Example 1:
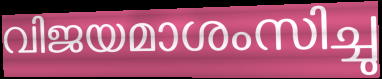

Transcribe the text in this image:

വിജയമാശംസിച്ചു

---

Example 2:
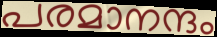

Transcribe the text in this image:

പരമാനന്ദം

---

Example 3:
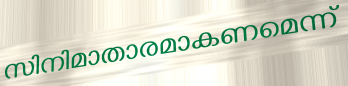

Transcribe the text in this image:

സിനിമാതാരമാകണമെന്ന്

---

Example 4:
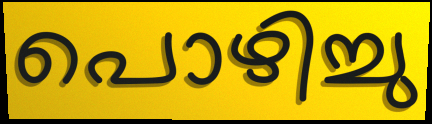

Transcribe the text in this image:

പൊഴിച്ചു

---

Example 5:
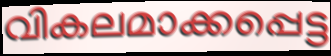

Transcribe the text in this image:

വികലമാക്കപ്പെട്ട